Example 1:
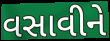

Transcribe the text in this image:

વસાવીને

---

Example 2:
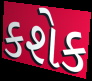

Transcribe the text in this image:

કશેક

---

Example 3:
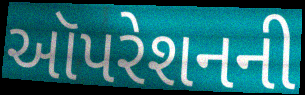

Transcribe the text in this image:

ઑપરેશનની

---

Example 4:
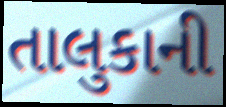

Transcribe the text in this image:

તાલુકાની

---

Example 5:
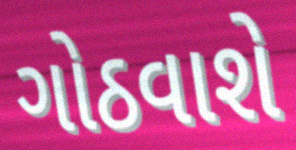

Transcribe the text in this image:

ગોઠવાશે